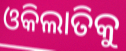
ଓକିଲାତିକୁ